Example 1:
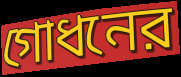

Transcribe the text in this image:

গোধনের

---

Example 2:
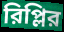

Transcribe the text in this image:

রিপ্লির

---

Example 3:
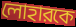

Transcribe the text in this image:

লোহারকে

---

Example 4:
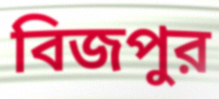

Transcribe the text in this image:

বিজপুর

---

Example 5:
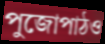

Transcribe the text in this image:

পুজোপাঠও